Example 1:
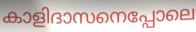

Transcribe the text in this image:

കാളിദാസനെപ്പോലെ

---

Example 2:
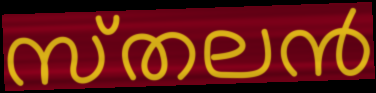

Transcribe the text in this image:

സ്‌തലൻ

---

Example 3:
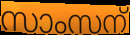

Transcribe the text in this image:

സാംസന്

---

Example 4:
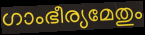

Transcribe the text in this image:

ഗാംഭീര്യമേതും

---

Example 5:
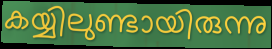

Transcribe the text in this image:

കയ്യിലുണ്ടായിരുന്നു